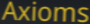
Axioms